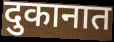
दुकानात